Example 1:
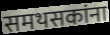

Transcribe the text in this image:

समथसकांना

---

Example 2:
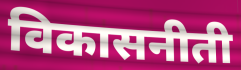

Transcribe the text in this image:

विकासनीती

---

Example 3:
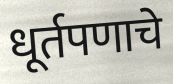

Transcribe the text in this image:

धूर्तपणाचे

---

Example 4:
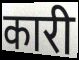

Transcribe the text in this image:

कारी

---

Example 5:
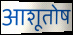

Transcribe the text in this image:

आशूतोष